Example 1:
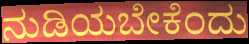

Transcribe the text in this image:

ನುಡಿಯಬೇಕೆಂದು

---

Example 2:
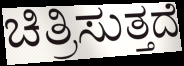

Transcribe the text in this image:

ಚಿತ್ರಿಸುತ್ತದೆ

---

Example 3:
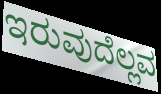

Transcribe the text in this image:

ಇರುವುದೆಲ್ಲವ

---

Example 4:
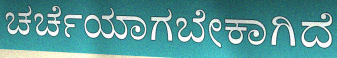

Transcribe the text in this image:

ಚರ್ಚೆಯಾಗಬೇಕಾಗಿದೆ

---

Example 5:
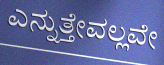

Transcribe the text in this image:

ಎನ್ನುತ್ತೇವಲ್ಲವೇ